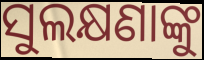
ସୁଲକ୍ଷଣାଙ୍କୁ